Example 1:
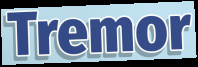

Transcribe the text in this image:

Tremor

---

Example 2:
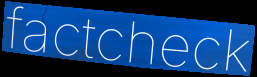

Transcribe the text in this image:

factcheck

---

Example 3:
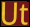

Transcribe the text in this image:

Ut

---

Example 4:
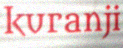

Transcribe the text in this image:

kuranji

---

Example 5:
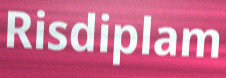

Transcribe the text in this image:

Risdiplam